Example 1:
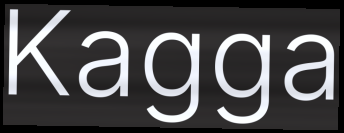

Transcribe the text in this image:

Kagga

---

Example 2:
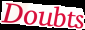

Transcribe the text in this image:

Doubts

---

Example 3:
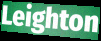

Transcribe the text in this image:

Leighton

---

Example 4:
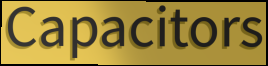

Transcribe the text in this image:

Capacitors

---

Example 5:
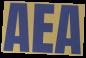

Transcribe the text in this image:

AEA